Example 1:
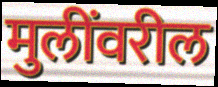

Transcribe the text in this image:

मुलींवरील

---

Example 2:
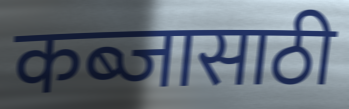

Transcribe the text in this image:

कब्जासाठी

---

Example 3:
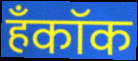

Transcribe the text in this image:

हँकॉक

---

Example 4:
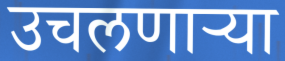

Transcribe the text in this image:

उचलणाऱ्या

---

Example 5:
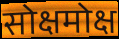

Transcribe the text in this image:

सोक्षमोक्ष